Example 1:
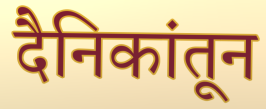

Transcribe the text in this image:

दैनिकांतून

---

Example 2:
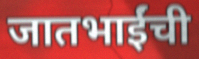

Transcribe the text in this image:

जातभाईंची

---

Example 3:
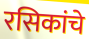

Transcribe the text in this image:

रसिकांचे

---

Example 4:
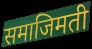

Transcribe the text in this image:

समाजिमती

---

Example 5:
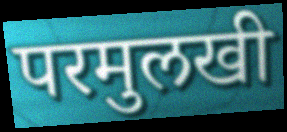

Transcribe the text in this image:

परमुलखी